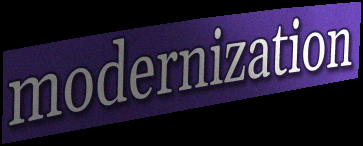
modernization